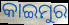
କାଇମୁର